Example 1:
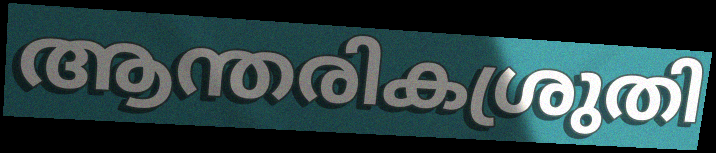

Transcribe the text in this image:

ആന്തരികശ്രുതി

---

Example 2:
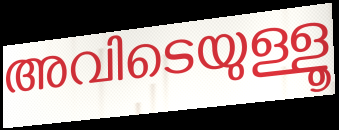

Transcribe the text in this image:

അവിടെയുള്ളൂ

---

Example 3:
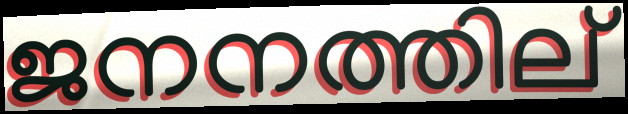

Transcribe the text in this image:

ജനനത്തില്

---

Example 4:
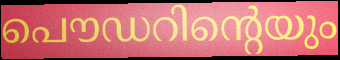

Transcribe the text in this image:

പൌഡറിന്റെയും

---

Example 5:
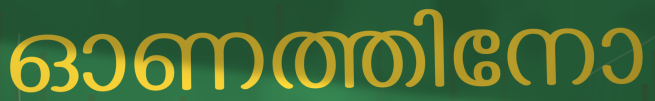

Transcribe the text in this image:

ഓണത്തിനോ